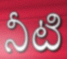
నీటి